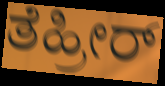
ತೆಹ್ರೀರ್